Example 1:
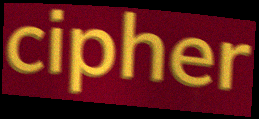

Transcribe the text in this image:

cipher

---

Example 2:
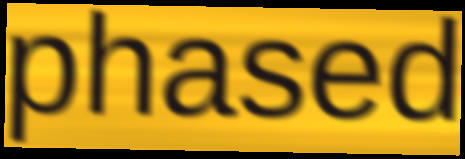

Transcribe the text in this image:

phased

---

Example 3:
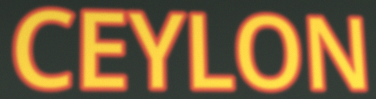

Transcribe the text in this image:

CEYLON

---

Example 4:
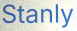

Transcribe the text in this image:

Stanly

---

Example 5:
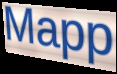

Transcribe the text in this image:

Mapp